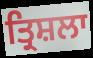
ਤ੍ਰਿਸ਼ਲਾ